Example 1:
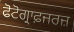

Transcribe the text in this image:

ਫੋਟੋਗ੍ਰਾਫ਼ਜਰਜ਼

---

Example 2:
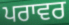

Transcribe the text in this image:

ਪਰਾਵਰ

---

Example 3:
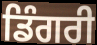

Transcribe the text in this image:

ਡਿੰਗਰੀ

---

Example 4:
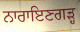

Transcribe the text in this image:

ਨਾਰਾਇਣਗੜ੍ਹ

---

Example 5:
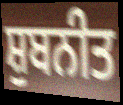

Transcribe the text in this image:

ਸ਼ੁਬਨੀਤ